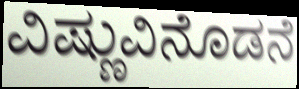
ವಿಷ್ಣುವಿನೊಡನೆ